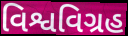
વિશ્વવિગ્રહ